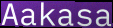
Aakasa